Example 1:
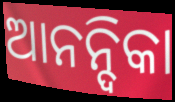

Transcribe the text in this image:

ଆନନ୍ଦିକା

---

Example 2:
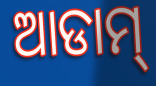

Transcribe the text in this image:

ଆଡାମ୍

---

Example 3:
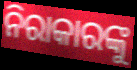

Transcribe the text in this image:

ନିରାକାରଙ୍କୁ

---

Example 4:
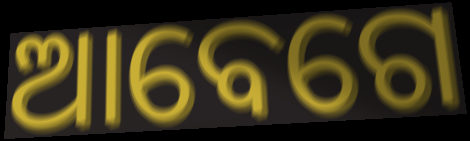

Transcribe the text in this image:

ଆବେଗେ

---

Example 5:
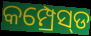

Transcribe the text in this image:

କମ୍ପ୍ରେସ୍‌ଡ